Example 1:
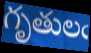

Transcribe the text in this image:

గృతులఁ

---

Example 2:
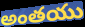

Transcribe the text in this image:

అంతయు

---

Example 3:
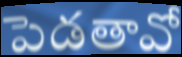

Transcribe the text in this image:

పెడతావో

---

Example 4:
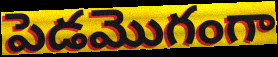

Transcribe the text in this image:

పెడమొగంగా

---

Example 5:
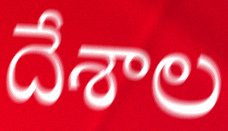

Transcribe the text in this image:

దేశాల